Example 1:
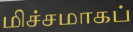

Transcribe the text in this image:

மிச்சமாகப்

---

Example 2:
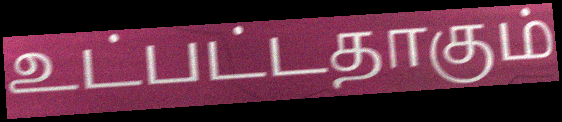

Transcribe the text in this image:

உட்பட்டதாகும்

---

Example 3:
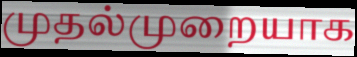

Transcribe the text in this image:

முதல்முறையாக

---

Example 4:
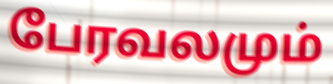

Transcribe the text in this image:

பேரவலமும்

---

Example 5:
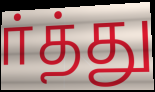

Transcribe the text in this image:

ர்த்து